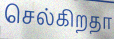
செல்கிறதா